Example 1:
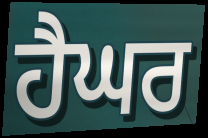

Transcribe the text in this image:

ਹੈਘਰ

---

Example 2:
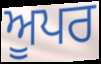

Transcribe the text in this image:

ਅੂਪਰ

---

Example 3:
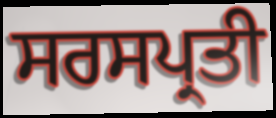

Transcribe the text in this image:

ਸਰਸਪ੍ਰਤੀ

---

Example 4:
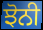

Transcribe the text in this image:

ਝੋਨੀ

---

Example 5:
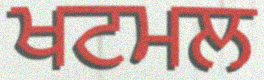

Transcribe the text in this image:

ਖਟਮਲ